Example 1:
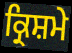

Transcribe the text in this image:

ਕ੍ਰਿਸ਼ਮੇ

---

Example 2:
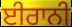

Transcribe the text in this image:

ਈਰਾਨੀ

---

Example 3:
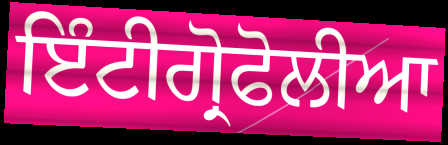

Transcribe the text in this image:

ਇੰਟੀਗ੍ਰੋਫੋਲੀਆ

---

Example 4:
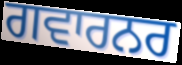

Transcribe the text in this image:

ਗਵਾਰਨਰ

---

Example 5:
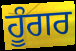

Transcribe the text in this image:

ਹੂੰਗਰ